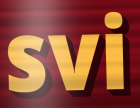
svi